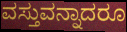
ವಸ್ತುವನ್ನಾದರೂ